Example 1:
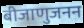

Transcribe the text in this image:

बीजाणुजनन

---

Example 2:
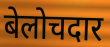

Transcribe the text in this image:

बेलोचदार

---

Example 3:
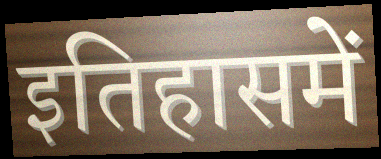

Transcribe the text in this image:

इतिहासमें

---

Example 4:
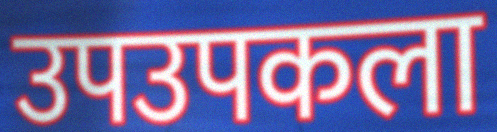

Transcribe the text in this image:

उपउपकला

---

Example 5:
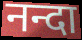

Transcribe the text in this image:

नन्दा